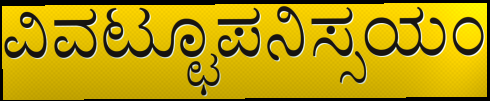
ವಿವಟ್ಟೂಪನಿಸ್ಸಯಂ